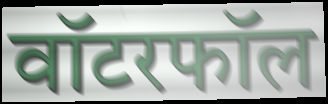
वॉटरफॉल